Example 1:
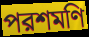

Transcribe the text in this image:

পরশমণি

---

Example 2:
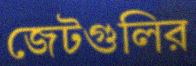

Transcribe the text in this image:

জেটগুলির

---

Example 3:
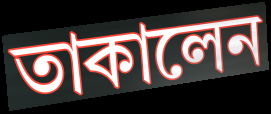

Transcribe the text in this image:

তাকালেন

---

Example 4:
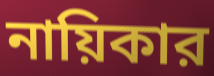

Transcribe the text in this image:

নায়িকার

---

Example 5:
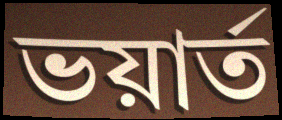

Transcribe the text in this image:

ভয়ার্ত